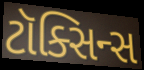
ટૉક્સિન્સ